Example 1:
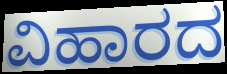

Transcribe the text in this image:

ವಿಹಾರದ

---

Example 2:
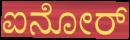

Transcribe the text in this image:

ಐನೋರ್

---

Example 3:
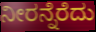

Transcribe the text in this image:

ನೀರನ್ನೆರೆದು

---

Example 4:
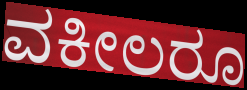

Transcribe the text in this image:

ವಕೀಲರೂ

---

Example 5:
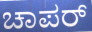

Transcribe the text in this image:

ಚಾಪರ್